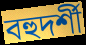
বহুদর্শী